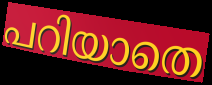
പറിയാതെ